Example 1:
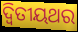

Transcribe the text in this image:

ଦ୍ବିତୀୟଥର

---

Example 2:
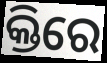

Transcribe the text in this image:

କ୍ତିରେ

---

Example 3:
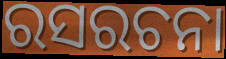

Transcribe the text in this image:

ରସରଚନା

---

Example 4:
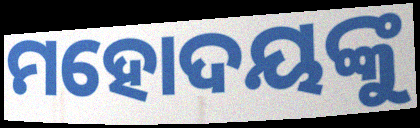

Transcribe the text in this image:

ମହୋଦୟଙ୍କୁ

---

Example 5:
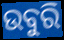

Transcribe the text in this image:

ଉବୁରି